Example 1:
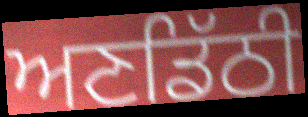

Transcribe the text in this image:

ਅਣਡਿੱਠੀ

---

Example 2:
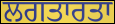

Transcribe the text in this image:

ਲਗਤਾਰਤਾ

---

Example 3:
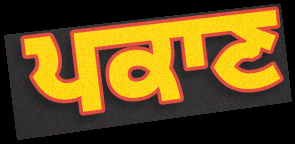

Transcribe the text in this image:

ਪਕਾਣ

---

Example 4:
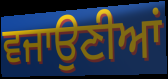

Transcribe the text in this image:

ਵਜਾਉਣੀਆਂ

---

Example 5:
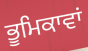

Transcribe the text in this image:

ਭੂਮਿਕਾਵਾਂ